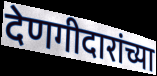
देणगीदारांच्या